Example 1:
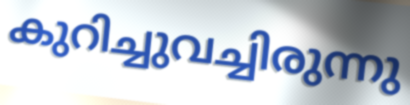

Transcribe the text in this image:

കുറിച്ചുവച്ചിരുന്നു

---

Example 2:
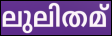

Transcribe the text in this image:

ലുലിതമ്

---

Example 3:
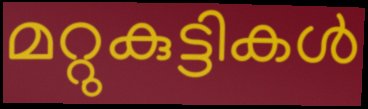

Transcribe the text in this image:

മറ്റുകുട്ടികൾ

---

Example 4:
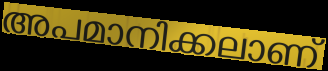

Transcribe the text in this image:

അപമാനിക്കലാണ്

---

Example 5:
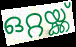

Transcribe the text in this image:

ഒറ്റയ്ക്ക്